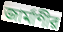
জার্মাণীর